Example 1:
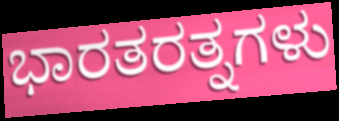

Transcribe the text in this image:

ಭಾರತರತ್ನಗಳು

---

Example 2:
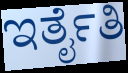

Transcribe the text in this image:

ಇರ್ತೈತಿ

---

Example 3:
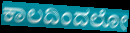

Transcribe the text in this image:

ಕಾಲದಿಂದಲೋ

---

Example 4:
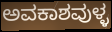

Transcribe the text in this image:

ಅವಕಾಶವುಳ್ಳ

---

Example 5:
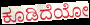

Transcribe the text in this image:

ಕೂಡಿದೆಯೋ